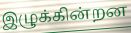
இழுக்கின்றன